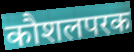
कौशलपरक